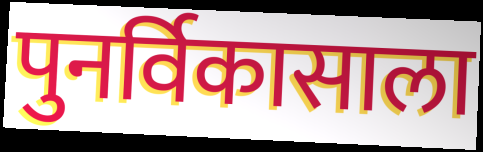
पुनर्विकासाला